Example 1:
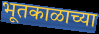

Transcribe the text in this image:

भूतकाळाच्या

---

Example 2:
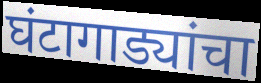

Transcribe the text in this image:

घंटागाड्यांचा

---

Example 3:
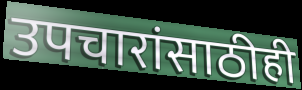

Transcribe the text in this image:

उपचारांसाठीही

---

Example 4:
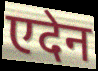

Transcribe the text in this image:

एदेन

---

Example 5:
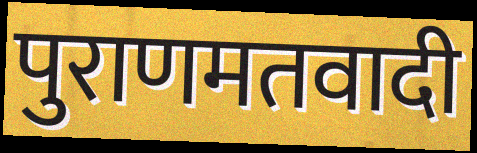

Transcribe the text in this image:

पुराणमतवादी